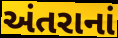
અંતરાનાં